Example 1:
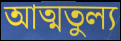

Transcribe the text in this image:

আত্মতুল্য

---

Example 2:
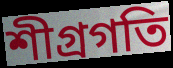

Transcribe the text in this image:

শীগ্রগতি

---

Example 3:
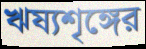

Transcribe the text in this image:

ঋষ্যশৃঙ্গের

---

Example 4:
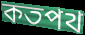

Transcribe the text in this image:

কতপথ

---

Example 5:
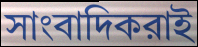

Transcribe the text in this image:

সাংবাদিকরাই